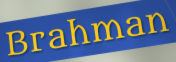
Brahman